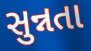
સુન્નતા